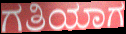
ಗತಿಯಾಗ